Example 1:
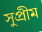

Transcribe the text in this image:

সুপ্রীম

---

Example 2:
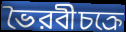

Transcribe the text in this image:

ভৈরবীচক্রে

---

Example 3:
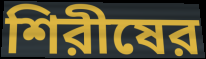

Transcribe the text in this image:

শিরীষের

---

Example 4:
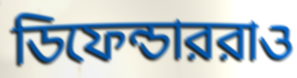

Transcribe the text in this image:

ডিফেন্ডাররাও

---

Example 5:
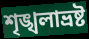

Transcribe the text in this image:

শৃঙ্খলাভ্রষ্ট